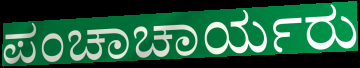
ಪಂಚಾಚಾರ್ಯರು